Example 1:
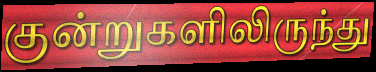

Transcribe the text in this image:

குன்றுகளிலிருந்து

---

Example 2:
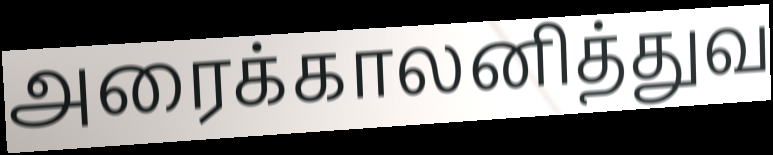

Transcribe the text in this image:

அரைக்காலனித்துவ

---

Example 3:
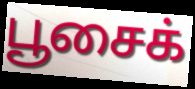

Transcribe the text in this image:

பூசைக்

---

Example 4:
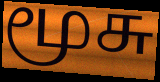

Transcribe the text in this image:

மூசு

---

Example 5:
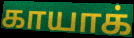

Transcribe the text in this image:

காயாக்